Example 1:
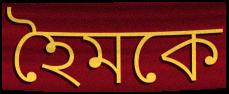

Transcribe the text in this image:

হৈমকে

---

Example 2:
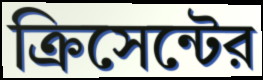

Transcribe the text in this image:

ক্রিসেন্টের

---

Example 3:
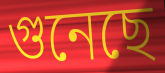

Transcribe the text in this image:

গুনেছে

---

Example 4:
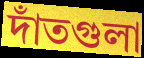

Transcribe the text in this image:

দাঁতগুলা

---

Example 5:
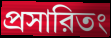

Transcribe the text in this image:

প্রসারিতং